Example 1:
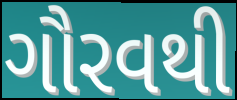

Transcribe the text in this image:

ગૌરવથી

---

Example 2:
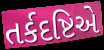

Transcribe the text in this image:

તર્કદષ્ટિએ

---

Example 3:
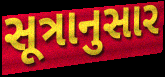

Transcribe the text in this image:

સૂત્રાનુસાર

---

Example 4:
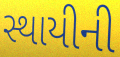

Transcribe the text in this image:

સ્થાયીની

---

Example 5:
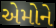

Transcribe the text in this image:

એમોને